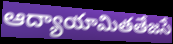
ఆద్యాయామితతేజసే